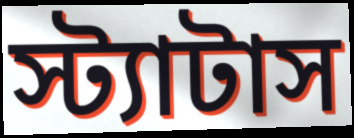
স্ট্যাটাস